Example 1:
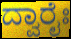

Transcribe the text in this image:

ದ್ವಾರೈಃ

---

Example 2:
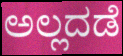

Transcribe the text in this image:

ಅಲ್ಲದಡೆ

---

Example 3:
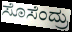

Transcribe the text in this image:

ಸೊಸೆಂದ್ರು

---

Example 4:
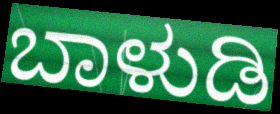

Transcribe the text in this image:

ಬಾಳುಡಿ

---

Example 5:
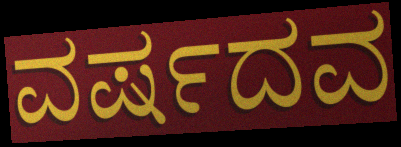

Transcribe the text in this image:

ವರ್ಷದವ